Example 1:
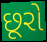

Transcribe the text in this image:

છૂરો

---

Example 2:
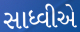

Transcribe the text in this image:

સાધ્વીએ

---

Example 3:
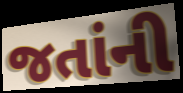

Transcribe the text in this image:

જતાંની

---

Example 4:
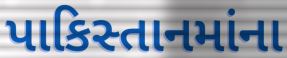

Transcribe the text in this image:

પાકિસ્તાનમાંના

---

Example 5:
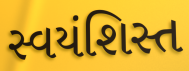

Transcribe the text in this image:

સ્વયંશિસ્ત